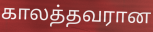
காலத்தவரான